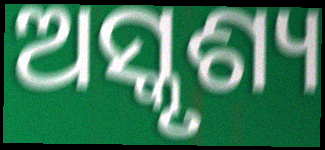
ଅସ୍କୃଶ୍ୟ